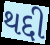
થદ્દી